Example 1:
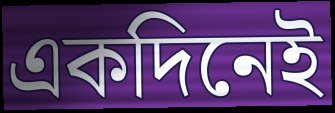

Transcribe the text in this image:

একদিনেই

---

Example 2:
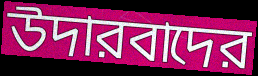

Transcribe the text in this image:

উদারবাদের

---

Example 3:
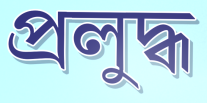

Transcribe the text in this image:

প্রলুদ্ধ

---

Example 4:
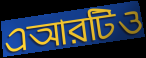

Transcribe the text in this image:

এআরটিও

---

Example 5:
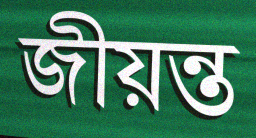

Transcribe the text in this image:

জীয়ন্ত